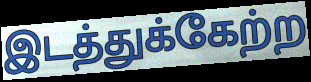
இடத்துக்கேற்ற